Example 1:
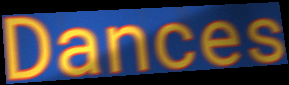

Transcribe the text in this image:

Dances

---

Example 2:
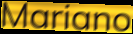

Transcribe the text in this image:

Mariano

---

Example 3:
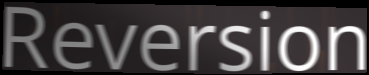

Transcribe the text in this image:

Reversion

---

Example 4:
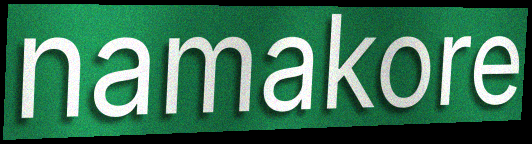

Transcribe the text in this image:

namakore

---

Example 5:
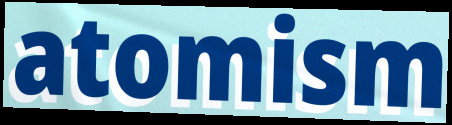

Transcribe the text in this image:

atomism